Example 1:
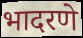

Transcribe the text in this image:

भादरणे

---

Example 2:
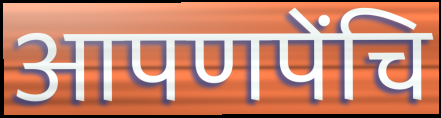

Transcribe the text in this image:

आपणपेंचि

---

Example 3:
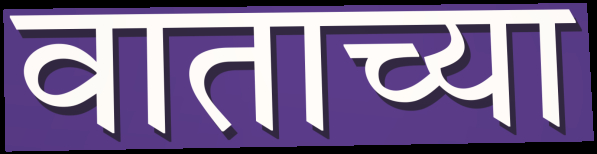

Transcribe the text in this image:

वाताच्या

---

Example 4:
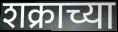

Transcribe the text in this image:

शक्राच्या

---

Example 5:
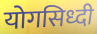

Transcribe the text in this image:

योगसिध्दी